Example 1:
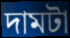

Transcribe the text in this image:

দামটা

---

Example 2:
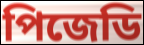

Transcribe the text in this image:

পিজেডি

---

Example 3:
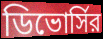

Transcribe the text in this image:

ডিভোর্সির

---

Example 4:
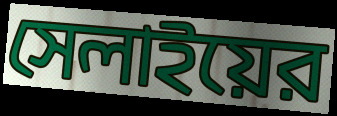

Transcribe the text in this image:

সেলাইয়ের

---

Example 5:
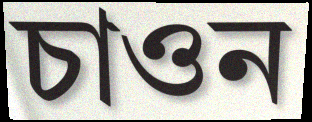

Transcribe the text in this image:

চাওন